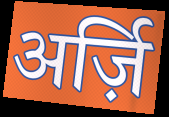
अर्ज़ि